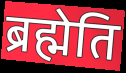
ब्रह्मेति